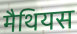
मैथियस